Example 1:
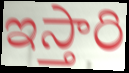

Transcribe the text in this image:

ఇస్తారి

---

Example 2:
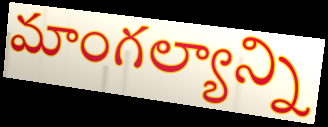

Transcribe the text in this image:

మాంగల్యాన్ని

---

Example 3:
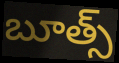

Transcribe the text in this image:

బూత్స్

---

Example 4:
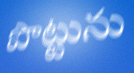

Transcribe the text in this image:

పొట్టును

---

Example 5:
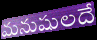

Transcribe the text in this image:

మనుషులదే